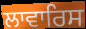
ਲਾਵਾਰਿਸ